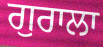
ਗੁਰਾਲਾ